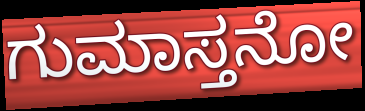
ಗುಮಾಸ್ತನೋ